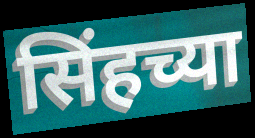
सिंहच्या